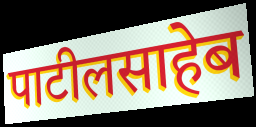
पाटीलसाहेब